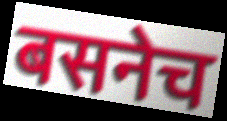
बसनेच